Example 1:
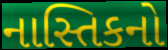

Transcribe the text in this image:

નાસ્તિકનો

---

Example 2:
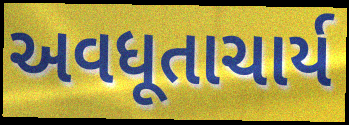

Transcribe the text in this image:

અવધૂતાચાર્ય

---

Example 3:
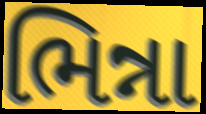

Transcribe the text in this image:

ભિન્ના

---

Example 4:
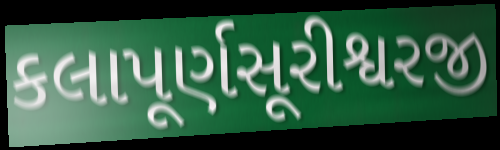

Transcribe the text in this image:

કલાપૂર્ણસૂરીશ્વરજી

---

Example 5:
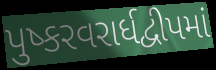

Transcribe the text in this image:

પુષ્કરવરાર્ધદ્વીપમાં